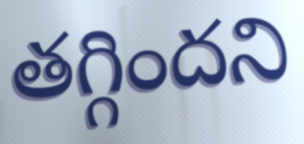
తగ్గిందని